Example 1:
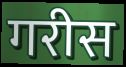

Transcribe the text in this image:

गरीस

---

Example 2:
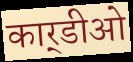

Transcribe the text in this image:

कार्डीओ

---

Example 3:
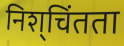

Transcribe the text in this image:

निश्चिंतता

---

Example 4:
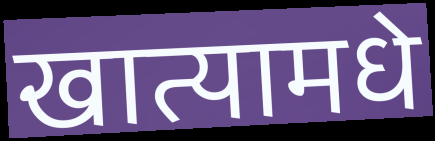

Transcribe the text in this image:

खात्यामधे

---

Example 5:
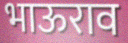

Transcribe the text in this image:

भाऊराव